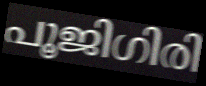
പൂജിഗിരി